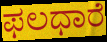
ಫಲಧಾರೆ